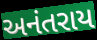
અનંતરાય